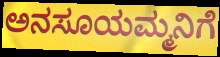
ಅನಸೂಯಮ್ಮನಿಗೆ